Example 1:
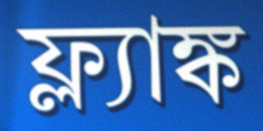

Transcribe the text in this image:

ফ্ল্যাঙ্ক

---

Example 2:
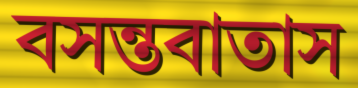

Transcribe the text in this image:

বসন্তবাতাস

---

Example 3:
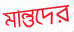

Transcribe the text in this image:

মান্তুদের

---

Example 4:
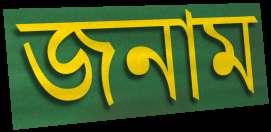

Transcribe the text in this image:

জনাম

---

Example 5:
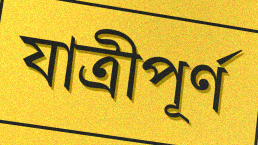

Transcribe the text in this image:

যাত্রীপূর্ণ